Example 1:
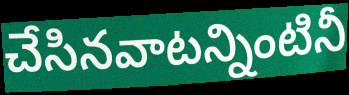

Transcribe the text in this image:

చేసినవాటన్నింటినీ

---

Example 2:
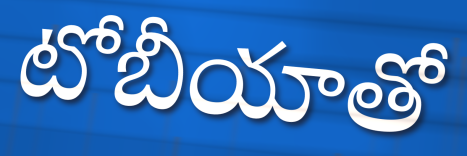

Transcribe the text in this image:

టోబీయాతో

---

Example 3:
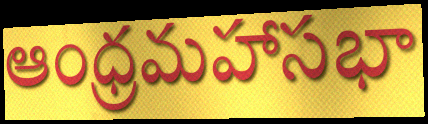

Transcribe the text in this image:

ఆంధ్రమహాసభా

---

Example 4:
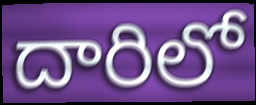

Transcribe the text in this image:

దారిలో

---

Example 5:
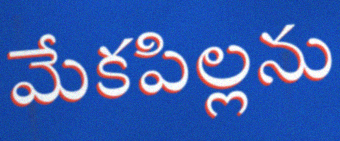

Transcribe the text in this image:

మేకపిల్లను